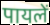
पायलें